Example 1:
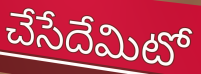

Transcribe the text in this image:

చేసేదేమిటో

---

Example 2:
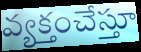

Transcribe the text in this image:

వ్యక్తంచేస్తూ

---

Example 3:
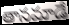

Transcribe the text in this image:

తానమాడే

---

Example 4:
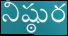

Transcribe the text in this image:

నిష్ఠుర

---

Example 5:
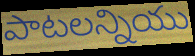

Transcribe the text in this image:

పాటలన్నియు